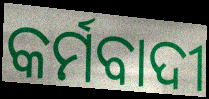
କର୍ମବାଦୀ